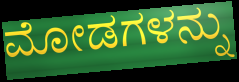
ಮೋಡಗಳನ್ನು